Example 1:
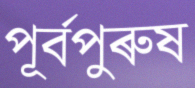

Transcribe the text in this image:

পূৰ্বপুৰুষ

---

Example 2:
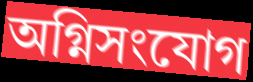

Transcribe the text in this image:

অগ্নিসংযোগ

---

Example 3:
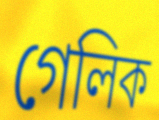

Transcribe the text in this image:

গেলিক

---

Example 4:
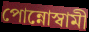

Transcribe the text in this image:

পোন্নোস্বামী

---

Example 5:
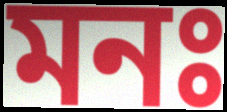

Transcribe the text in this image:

মনঃ